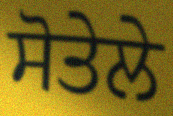
ਸੋਤੇਲੇ